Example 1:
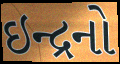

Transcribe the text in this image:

ઇન્દ્રનો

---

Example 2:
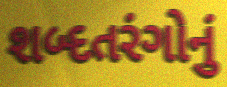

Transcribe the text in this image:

શબ્દતરંગોનું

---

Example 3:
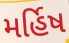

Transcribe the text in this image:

મર્હિષ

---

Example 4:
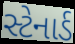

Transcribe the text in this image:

સ્ટેનાર્ડ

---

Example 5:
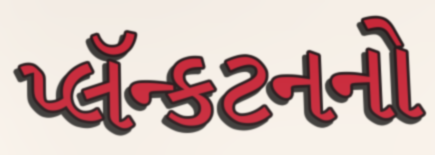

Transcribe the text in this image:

પ્લૅન્કટનનો